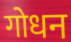
गोधन